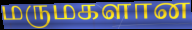
மருமகளான